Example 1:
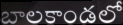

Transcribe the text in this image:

బాలకాండలో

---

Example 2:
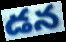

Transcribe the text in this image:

డన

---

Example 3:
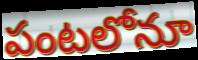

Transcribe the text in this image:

పంటలోనూ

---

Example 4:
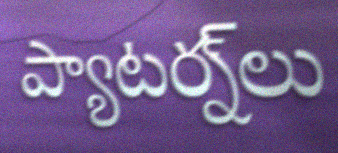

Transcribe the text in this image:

ప్యాటర్న్‌లు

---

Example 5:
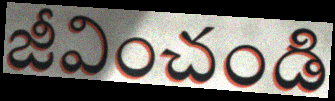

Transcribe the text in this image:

జీవించండి